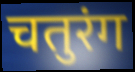
चतुरंग